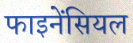
फाइनेंसियल